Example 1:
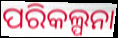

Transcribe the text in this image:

ପରିକଲ୍ପନା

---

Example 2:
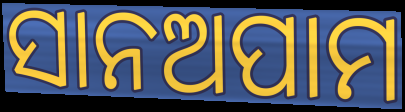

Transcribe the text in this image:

ସାନଅପାମ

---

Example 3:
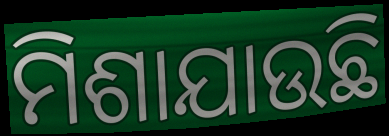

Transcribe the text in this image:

ମିଶାଯାଉଛି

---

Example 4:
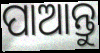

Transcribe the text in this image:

ପାଆନ୍ତୁ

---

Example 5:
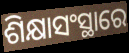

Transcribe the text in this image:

ଶିକ୍ଷାସଂସ୍ଥାରେ